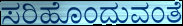
ಸರಿಹೊಂದುವಂತೆ